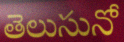
తెలుసునో